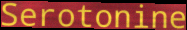
Serotonine